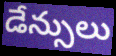
డేన్సులు